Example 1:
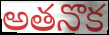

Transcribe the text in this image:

అతనొక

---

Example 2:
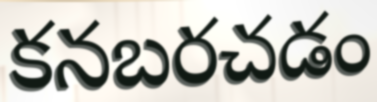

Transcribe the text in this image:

కనబరచడం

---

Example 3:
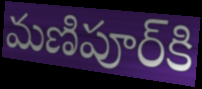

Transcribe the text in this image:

మణిపూర్‌కి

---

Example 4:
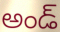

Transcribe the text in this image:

అండ్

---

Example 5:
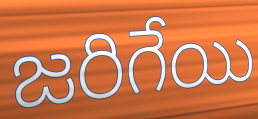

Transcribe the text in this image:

జరిగేయి